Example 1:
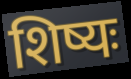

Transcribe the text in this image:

शिष्यः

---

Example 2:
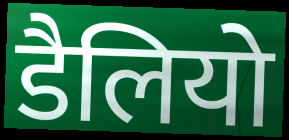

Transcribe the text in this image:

डैलियो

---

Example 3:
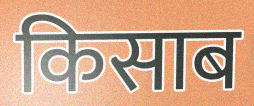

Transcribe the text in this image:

किसाब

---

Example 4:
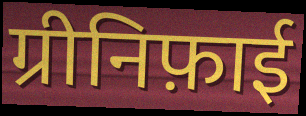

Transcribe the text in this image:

ग्रीनिफ़ाई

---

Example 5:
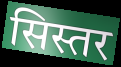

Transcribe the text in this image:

सिस्तर